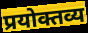
प्रयोक्तव्य